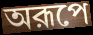
অরূপে